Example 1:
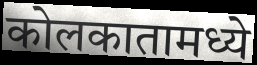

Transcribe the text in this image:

कोलकातामध्ये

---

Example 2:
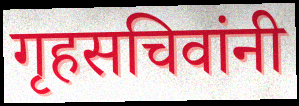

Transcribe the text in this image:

गृहसचिवांनी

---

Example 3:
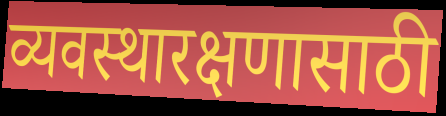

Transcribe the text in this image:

व्यवस्थारक्षणासाठी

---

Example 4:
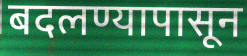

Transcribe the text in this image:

बदलण्यापासून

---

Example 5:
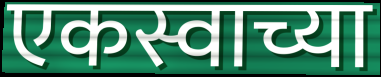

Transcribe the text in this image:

एकस्वाच्या